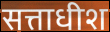
सत्ताधीश